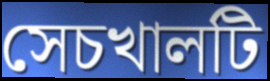
সেচখালটি